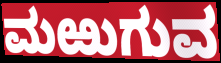
ಮಱುಗುವ